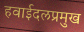
हवाईदलप्रमुख